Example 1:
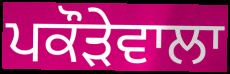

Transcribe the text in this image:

ਪਕੌੜੇਵਾਲਾ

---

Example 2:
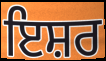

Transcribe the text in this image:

ਇਸ਼ਰ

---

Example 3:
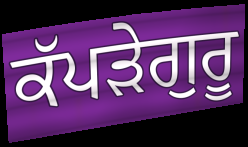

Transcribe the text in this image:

ਕੱਪੜੇਗੁਰੂ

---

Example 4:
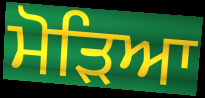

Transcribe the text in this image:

ਮੋੜਿਆ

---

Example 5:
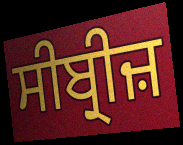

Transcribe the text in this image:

ਸੀਬ੍ਰੀਜ਼